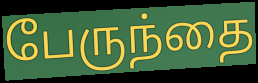
பேருந்தை